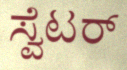
ಸ್ವೆಟರ್